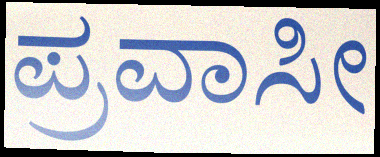
ಪ್ರವಾಸೀ